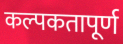
कल्पकतापूर्ण